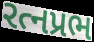
રત્નપ્રભ